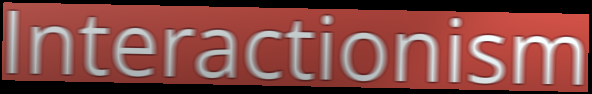
Interactionism